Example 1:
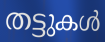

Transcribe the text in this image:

തട്ടുകൾ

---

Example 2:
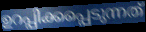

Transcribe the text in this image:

ഉറപ്പിക്കപ്പെടുന്നത്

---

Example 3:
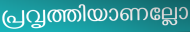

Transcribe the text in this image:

പ്രവൃത്തിയാണല്ലോ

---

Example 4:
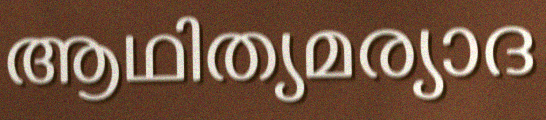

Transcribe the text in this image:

ആഥിത്യമര്യാദ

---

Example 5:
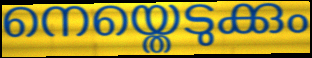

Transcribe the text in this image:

നെയ്തെടുക്കും